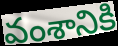
వంశానికి